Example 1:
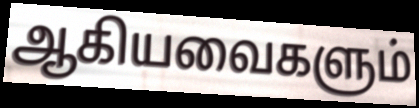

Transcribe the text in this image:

ஆகியவைகளும்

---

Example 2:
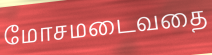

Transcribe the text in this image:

மோசமடைவதை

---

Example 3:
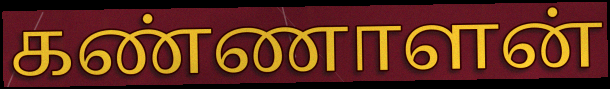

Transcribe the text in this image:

கண்ணாளன்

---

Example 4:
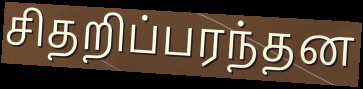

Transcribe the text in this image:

சிதறிப்பரந்தன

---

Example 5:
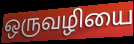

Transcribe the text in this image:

ஒருவழியை